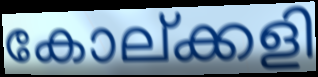
കോല്ക്കളി